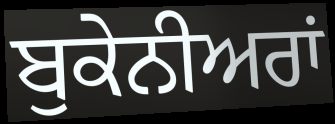
ਬੁਕੇਨੀਅਰਾਂ